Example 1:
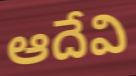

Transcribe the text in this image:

ఆదేవి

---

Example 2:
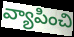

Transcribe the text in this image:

వ్యాపించి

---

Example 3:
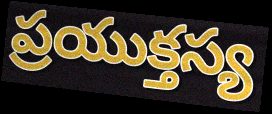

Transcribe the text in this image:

ప్రయుక్తస్య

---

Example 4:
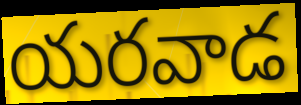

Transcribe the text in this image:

యరవాడ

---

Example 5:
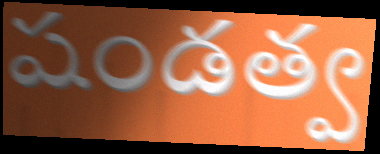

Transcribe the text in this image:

షండత్వ